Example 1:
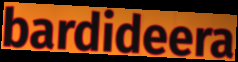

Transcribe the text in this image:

bardideera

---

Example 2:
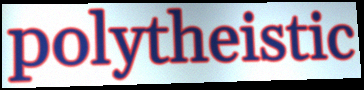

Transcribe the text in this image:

polytheistic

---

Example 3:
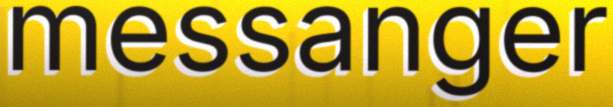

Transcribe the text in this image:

messanger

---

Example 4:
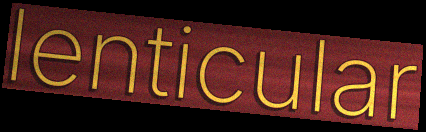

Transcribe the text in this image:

lenticular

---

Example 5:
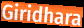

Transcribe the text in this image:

Giridhara